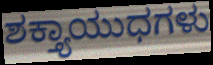
ಶಕ್ತ್ಯಾಯುಧಗಳು